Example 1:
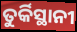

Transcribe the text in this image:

ତୁର୍କିସ୍ଥାନୀ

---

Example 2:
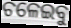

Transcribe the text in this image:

ଚଳେଇବୁ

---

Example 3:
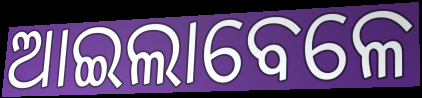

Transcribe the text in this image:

ଆଇଲାବେଳେ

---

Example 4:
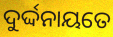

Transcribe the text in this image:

ଦୁର୍ଦ୍ଦନାୟତେ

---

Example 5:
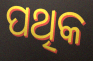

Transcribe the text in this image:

ପଥିକ